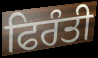
ਫਿਰੰਤੀ